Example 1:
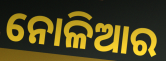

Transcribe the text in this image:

ନୋଳିଆର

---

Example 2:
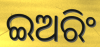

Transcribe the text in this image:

ଇଅରିଂ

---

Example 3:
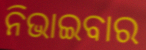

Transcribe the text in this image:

ନିଭାଇବାର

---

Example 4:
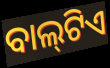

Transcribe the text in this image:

ବାଲ୍‍ଟିଏ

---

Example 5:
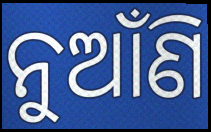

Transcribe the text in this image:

ନୁଆଁଣି